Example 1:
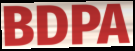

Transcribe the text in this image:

BDPA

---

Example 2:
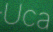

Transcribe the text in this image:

Uca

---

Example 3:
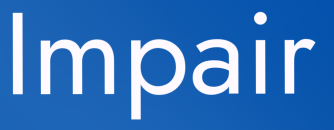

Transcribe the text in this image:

Impair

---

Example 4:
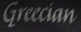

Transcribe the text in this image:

Greecian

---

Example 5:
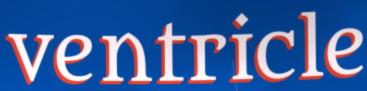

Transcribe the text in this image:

ventricle